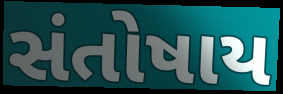
સંતોષાય